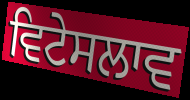
ਵਿਟੇਸਲਾਵ